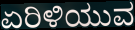
ಏರಿಳಿಯುವ